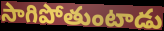
సాగిపోతుంటాడు